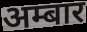
अम्बार